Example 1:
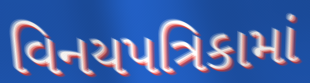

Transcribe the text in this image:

વિનયપત્રિકામાં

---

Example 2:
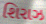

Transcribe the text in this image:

શિરાઝ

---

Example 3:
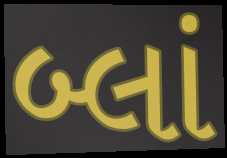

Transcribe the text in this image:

બ્લાં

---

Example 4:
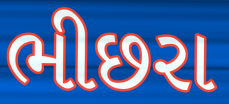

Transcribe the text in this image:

ભીછરા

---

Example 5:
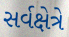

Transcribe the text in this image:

સર્વક્ષેત્રે